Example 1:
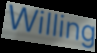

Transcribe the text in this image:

Willing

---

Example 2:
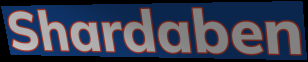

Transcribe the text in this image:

Shardaben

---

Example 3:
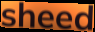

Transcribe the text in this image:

sheed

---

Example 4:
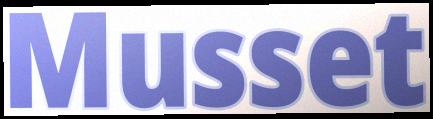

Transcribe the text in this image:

Musset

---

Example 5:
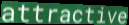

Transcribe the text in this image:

attractive